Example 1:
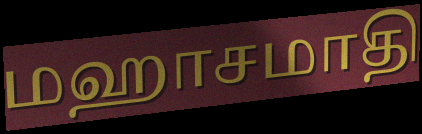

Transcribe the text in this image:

மஹாசமாதி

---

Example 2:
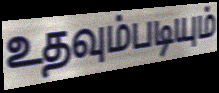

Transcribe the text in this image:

உதவும்படியும்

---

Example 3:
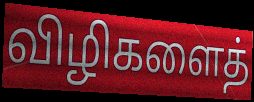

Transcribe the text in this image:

விழிகளைத்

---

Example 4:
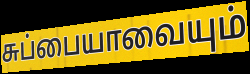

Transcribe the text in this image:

சுப்பையாவையும்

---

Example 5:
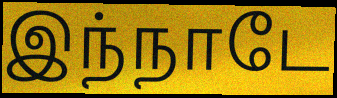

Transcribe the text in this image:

இந்நாடே